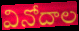
వినోదాల